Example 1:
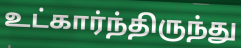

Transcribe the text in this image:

உட்கார்ந்திருந்து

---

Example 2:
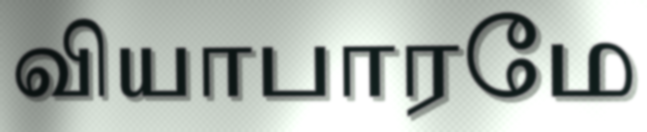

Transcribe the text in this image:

வியாபாரமே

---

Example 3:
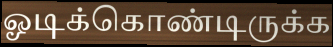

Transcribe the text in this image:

ஓடிக்கொண்டிருக்க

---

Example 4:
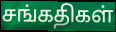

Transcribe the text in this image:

சங்கதிகள்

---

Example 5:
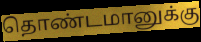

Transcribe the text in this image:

தொண்டமானுக்கு